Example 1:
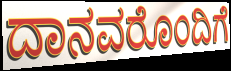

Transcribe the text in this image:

ದಾನವರೊಂದಿಗೆ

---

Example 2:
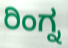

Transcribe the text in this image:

ರಿಂಗ್ನ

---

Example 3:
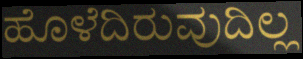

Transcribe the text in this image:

ಹೊಳೆದಿರುವುದಿಲ್ಲ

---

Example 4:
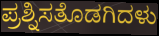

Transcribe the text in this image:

ಪ್ರಶ್ನಿಸತೊಡಗಿದಳು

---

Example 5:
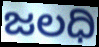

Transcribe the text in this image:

ಜಲಧಿ